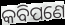
କବିପଣେ